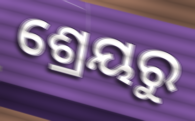
ଶ୍ରେୟରୁ